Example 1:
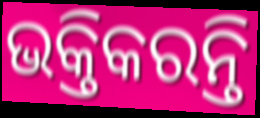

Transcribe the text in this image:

ଭକ୍ତିକରନ୍ତି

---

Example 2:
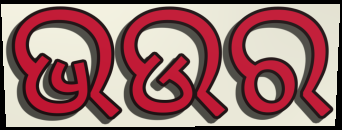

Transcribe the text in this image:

ଭଉର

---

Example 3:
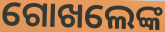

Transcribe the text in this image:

ଗୋଖଲେଙ୍କ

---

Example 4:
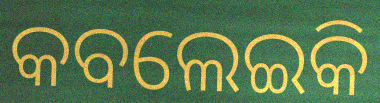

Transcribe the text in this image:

କବଲେଇକି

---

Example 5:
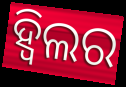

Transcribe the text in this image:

ହ୍ଵିଲର